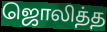
ஜொலித்த